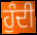
ਹੁੰਦੀ